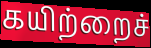
கயிற்றைச்